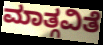
ಮಾತ್ಗವಿತೆ